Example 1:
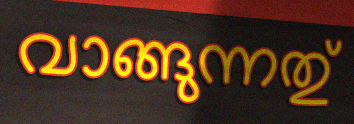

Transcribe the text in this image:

വാങ്ങുന്നതു്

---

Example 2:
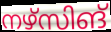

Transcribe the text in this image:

നഴ്സിങ്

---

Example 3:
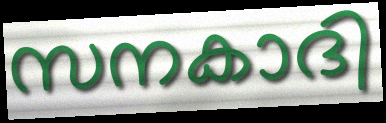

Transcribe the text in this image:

സനകാദി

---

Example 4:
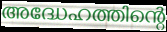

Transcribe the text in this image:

അദ്ധേഹത്തിന്റെ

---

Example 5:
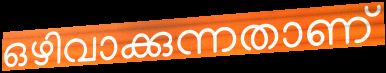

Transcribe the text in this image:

ഒഴിവാക്കുന്നതാണ്